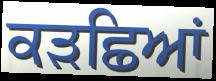
ਕੜਛਿਆਂ